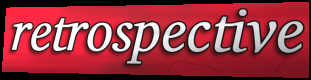
retrospective